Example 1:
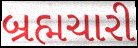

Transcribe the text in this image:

બ્રહ્મચારી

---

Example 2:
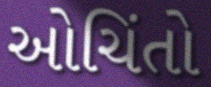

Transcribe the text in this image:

ઓચિંતો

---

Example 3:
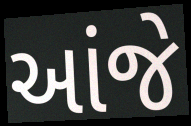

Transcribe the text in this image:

આંજે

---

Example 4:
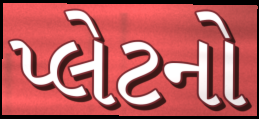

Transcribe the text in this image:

પ્લેટનો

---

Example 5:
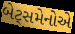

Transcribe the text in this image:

બેટ્સમેનોએ